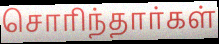
சொரிந்தார்கள்